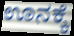
ಊನಕ್ಕೆ